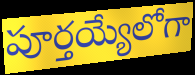
పూర్తయ్యేలోగా